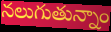
నలుగుతున్నాం